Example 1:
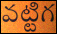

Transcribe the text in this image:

వట్టిగ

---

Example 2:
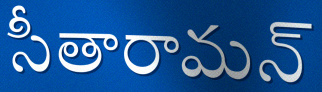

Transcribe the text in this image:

సీతారామన్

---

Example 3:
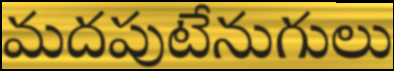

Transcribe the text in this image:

మదపుటేనుగులు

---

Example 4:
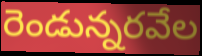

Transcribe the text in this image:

రెండున్నరవేల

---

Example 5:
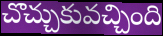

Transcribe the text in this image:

చొచ్చుకువచ్చింది